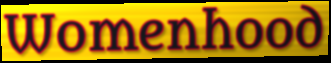
Womenhood